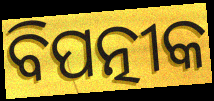
ବିପତ୍ନୀକ